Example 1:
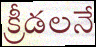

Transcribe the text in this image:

క్రీడలనే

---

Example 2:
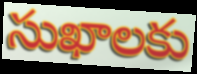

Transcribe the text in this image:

సుఖాలకు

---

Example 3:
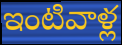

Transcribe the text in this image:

ఇంటివాళ్ల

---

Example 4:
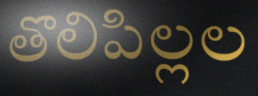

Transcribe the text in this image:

తొలిపిల్లల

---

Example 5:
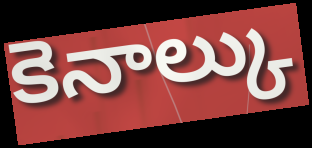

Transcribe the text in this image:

కెనాల్కు